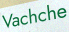
Vachche